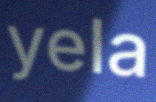
yela